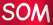
SOM